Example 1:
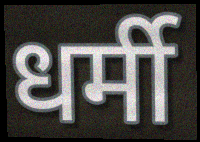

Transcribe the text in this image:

धर्मी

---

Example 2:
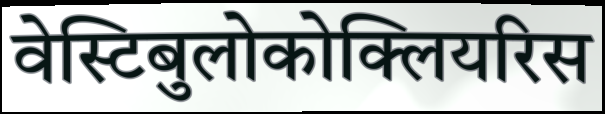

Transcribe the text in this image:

वेस्टिबुलोकोक्लियरिस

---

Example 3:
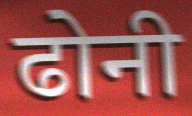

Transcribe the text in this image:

ढोनी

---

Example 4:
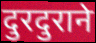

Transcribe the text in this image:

दुरदुराने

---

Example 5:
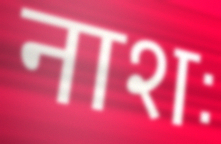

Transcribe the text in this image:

नाशः